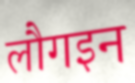
लौगइन